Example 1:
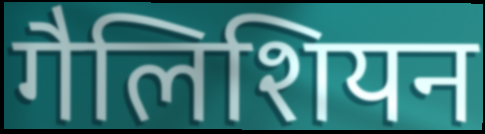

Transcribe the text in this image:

गैलिशियन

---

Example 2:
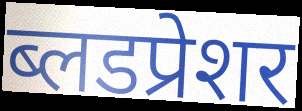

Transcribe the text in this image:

ब्लडप्रेशर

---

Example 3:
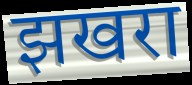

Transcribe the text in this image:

झखरा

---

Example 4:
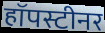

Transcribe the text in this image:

हॉपस्टीनर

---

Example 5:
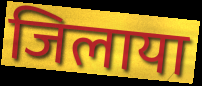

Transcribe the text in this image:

जिलाया